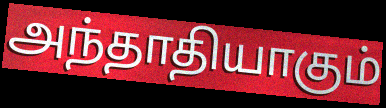
அந்தாதியாகும்